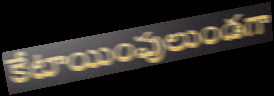
కేటాయింపులుండగా